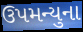
ઉપમન્યુના